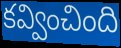
కవ్వించింది